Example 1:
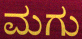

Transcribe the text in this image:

ಮಗು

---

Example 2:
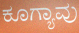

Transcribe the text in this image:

ಕೂಗ್ಯಾವು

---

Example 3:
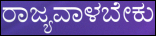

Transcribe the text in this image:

ರಾಜ್ಯವಾಳಬೇಕು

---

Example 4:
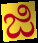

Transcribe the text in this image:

ಜಿ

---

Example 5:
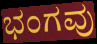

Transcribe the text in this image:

ಭಂಗವು